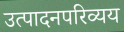
उत्पादनपरिव्यय